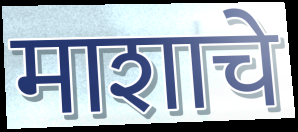
माशाचे